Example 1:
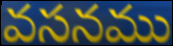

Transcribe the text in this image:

వసనము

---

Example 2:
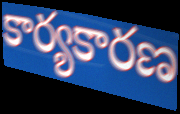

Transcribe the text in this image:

కార్యకారణ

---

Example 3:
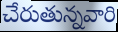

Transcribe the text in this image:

చేరుతున్నవారి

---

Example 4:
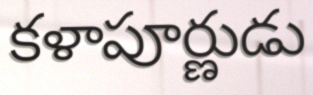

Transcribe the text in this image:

కళాపూర్ణుడు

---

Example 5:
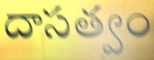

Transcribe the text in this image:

దాసత్వం